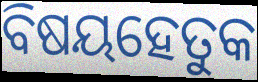
ବିଷୟହେତୁକ